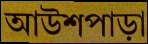
আউশপাড়া